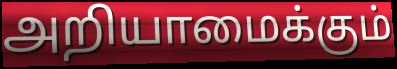
அறியாமைக்கும்